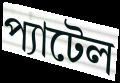
প্যাটেল